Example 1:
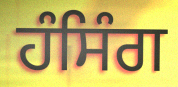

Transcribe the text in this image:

ਹੰਸਿੰਗ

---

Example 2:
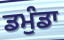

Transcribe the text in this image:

ਡਮੁੰਡਾ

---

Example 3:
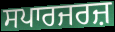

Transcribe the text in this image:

ਸਪਾਰਜਰਜ਼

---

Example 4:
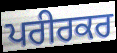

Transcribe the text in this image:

ਪਰੀਰਕਰ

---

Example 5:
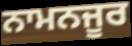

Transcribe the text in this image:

ਨਾਮਨਜੂਰ